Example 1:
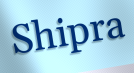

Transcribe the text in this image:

Shipra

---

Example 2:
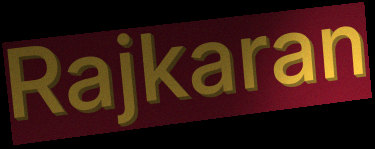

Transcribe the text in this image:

Rajkaran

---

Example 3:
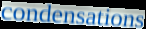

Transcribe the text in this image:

condensations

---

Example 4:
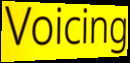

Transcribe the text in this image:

Voicing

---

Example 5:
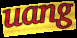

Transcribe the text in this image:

uang